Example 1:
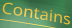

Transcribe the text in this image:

Contains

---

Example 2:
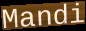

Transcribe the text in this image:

Mandi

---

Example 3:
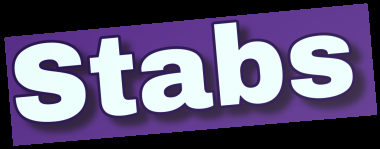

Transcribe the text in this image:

Stabs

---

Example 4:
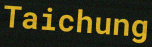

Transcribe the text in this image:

Taichung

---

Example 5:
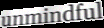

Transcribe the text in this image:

unmindful